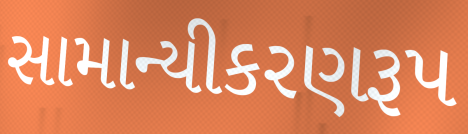
સામાન્યીકરણરૂપ